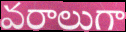
వరాలుగా